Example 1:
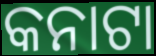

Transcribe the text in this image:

କନାଟା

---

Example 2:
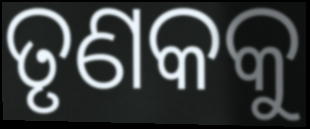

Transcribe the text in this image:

ତୃଣକକୁ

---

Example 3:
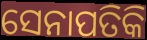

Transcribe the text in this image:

ସେନାପତିକି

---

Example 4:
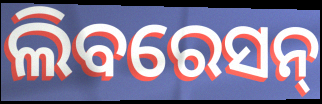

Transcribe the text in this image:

ଲିବରେସନ୍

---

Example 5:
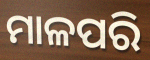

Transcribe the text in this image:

ମାଳପରି